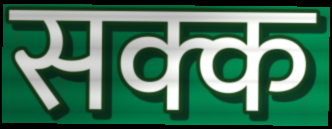
सक्क